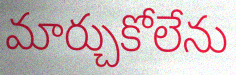
మార్చుకోలేను